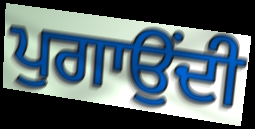
ਪੁਗਾਉਂਦੀ